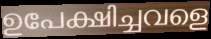
ഉപേക്ഷിച്ചവളെ